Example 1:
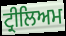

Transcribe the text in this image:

ਟ੍ਰੀਲਿਅਮ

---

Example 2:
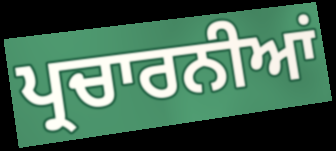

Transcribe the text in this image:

ਪ੍ਰਚਾਰਨੀਆਂ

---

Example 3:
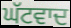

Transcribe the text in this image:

ਘੱਟਵਾਦ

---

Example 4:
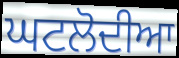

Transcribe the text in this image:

ਘਟਲੋਦੀਆ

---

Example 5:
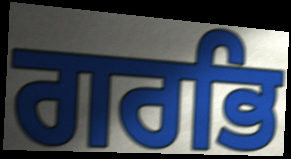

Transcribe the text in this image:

ਗਰਭਿ